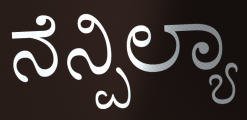
ನೆನ್ಪಿಲ್ಯಾ